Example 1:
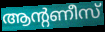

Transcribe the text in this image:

ആന്റണീസ്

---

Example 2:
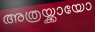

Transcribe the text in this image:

അത്രയ്ക്കായോ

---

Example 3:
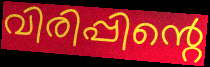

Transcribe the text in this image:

വിരിപ്പിന്റെ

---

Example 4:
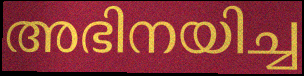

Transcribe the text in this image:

അഭിനയിച്ച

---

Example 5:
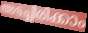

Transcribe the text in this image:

അടച്ചിരിക്കാം